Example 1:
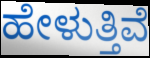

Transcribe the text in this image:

ಹೇಳುತ್ತಿವೆ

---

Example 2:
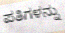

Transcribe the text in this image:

ಪತಿಗಳನ್ನು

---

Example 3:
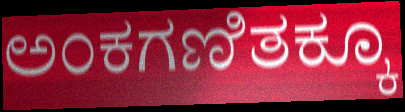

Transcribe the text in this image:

ಅಂಕಗಣಿತಕ್ಕೂ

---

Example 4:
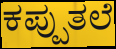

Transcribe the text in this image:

ಕಪ್ಪುತಲೆ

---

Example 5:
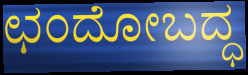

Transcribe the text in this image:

ಛಂದೋಬದ್ಧ